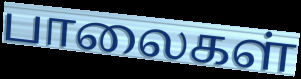
பாலைகள்